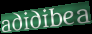
adidibea